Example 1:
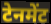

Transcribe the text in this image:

टेनमेंट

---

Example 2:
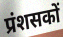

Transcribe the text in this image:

प्रंशसकों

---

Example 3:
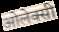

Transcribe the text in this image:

ओलेक्सी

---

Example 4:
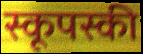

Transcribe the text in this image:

स्कूपस्की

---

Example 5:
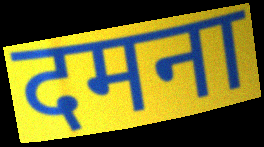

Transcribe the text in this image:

दमना